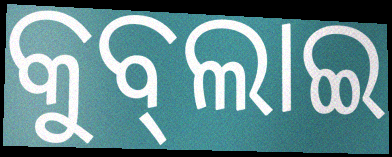
କୁବ୍‌ଲାଇ